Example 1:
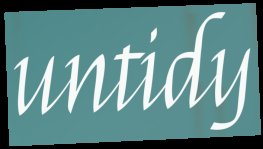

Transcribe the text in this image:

untidy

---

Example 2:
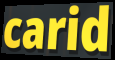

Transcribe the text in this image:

carid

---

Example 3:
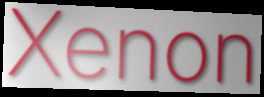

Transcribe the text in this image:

Xenon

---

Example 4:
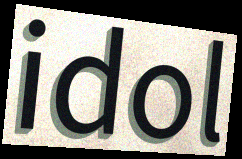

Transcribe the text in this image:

idol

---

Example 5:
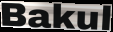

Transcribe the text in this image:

Bakul